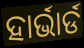
ହାର୍ଭାର୍ଡ